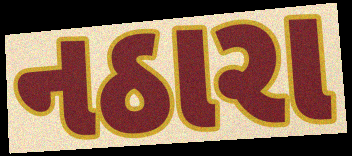
નઠારા